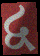
દ્વ